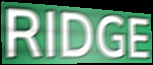
RIDGE